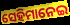
ସେହିମାନେଇ